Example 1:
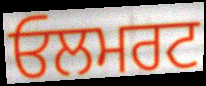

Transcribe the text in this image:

ਓਲਮਰਟ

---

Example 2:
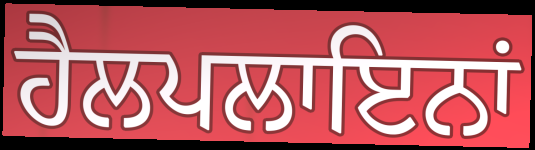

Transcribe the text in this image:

ਹੈਲਪਲਾਇਨਾਂ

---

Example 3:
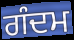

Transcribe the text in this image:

ਗੰਦਮ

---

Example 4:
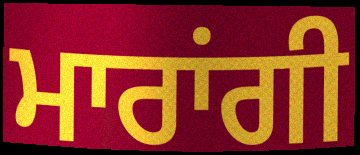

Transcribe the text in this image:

ਮਾਰਾਂਗੀ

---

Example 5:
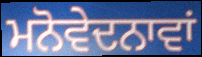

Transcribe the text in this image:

ਮਨੋਵੇਦਨਾਵਾਂ